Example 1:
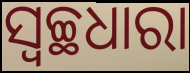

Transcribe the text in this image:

ସ୍ୱଚ୍ଛଧାରା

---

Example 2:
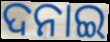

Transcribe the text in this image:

ଦନାଇ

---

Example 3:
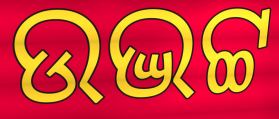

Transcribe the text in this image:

ଉଦ୍ଭଟ୍ଟ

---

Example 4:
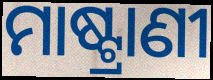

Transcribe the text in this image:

ମାଷ୍ଟ୍ରାଣୀ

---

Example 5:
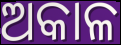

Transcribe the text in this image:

ଅକାଳ